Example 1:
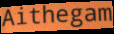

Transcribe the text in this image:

Aithegam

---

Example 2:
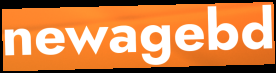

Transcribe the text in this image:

newagebd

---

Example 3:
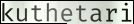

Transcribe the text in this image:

kuthetari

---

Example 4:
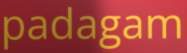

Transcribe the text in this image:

padagam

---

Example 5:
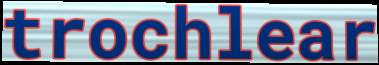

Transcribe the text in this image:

trochlear